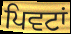
ਪਿਵਟਾਂ